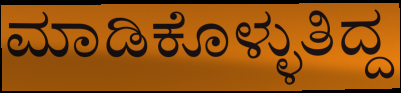
ಮಾಡಿಕೊಳ್ಳುತಿದ್ದ